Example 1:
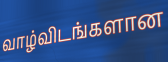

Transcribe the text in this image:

வாழ்விடங்களான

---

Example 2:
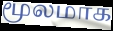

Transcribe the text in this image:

மூலமாக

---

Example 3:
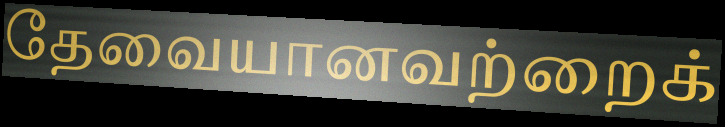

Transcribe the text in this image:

தேவையானவற்றைக்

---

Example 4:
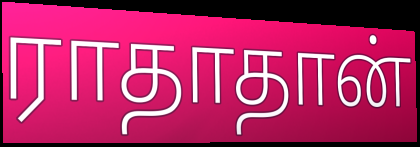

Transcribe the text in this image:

ராதாதான்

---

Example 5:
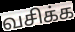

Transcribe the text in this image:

வசிக்க